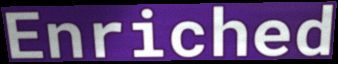
Enriched